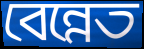
বেন্নেত